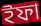
ইফা